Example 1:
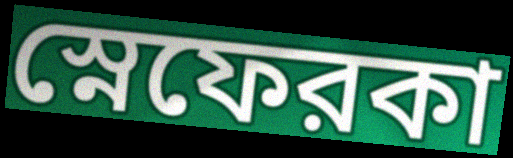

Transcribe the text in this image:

স্নেফেরকা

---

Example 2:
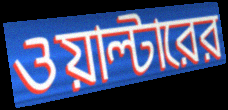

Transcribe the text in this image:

ওয়াল্টারের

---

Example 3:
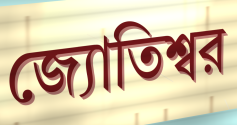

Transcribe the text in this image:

জ্যোতিশ্বর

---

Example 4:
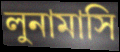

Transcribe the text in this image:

লুনামাসি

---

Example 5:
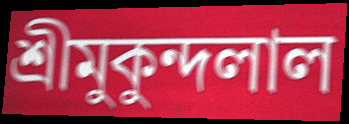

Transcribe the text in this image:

শ্রীমুকুন্দলাল